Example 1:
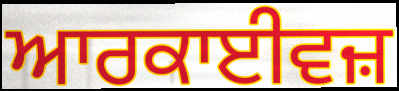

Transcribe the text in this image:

ਆਰਕਾਈਵਜ਼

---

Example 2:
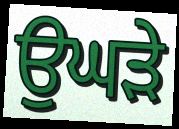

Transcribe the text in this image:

ਉਘੜੇ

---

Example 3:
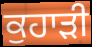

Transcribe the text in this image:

ਕੁਹਾੜੀ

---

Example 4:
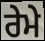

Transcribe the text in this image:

ਰੇਮੇ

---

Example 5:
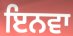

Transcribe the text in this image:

ਇਨਵਾ